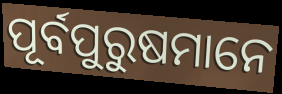
ପୂର୍ବପୁରୁଷମାନେ